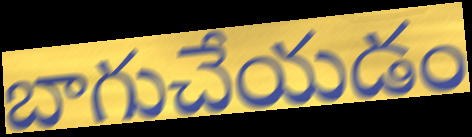
బాగుచేయడం